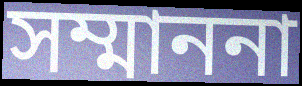
সম্মাননা